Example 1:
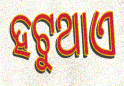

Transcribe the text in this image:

ହଟୁଥାଏ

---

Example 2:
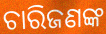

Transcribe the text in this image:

ଚାରିଜଣଙ୍କ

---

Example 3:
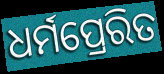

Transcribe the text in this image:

ଧର୍ମପ୍ରେରିତ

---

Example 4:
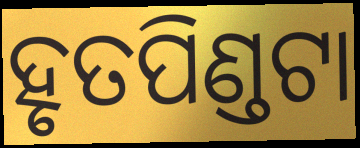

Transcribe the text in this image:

ହୃତପିଣ୍ଡଟା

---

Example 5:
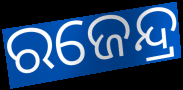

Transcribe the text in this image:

ରଜେନ୍ଦ୍ର